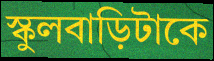
স্কুলবাড়িটাকে